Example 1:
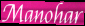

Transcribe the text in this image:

Manohar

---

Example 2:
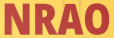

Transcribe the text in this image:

NRAO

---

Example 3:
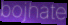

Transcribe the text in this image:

bojhate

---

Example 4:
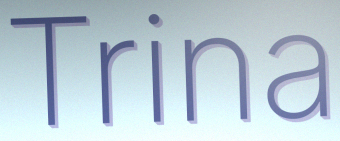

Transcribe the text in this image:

Trina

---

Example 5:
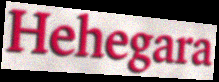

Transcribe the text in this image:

Hehegara